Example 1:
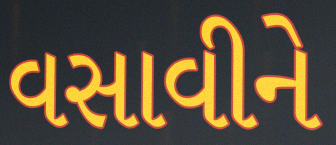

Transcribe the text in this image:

વસાવીને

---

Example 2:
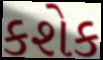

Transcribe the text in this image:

કશેક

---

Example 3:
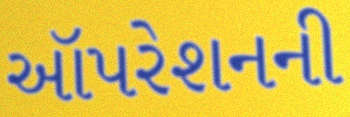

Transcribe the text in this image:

ઑપરેશનની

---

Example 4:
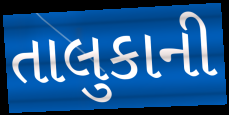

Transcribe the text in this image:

તાલુકાની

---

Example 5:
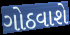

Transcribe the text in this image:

ગોઠવાશે